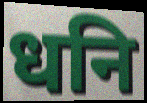
धनि